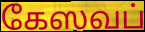
கேஸவப்